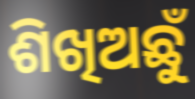
ଶିଖିଅଛୁଁ